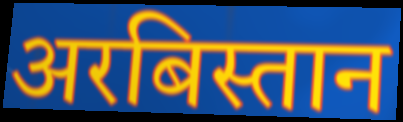
अरबिस्तान